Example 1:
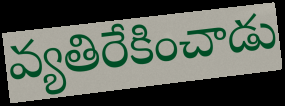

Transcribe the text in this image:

వ్యతిరేకించాడు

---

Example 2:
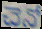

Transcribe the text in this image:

చెనో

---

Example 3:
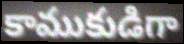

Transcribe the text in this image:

కాముకుడిగా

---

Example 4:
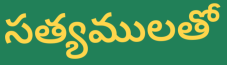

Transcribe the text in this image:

సత్యములతో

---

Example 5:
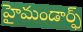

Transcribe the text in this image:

హైమండార్ఫ్